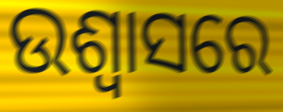
ଉଶ୍ଵାସରେ